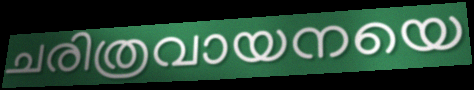
ചരിത്രവായനയെ